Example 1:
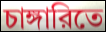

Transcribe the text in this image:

চাঙ্গারিতে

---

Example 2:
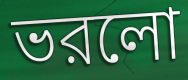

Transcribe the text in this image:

ভরলো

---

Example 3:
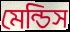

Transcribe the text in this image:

মেন্ডিস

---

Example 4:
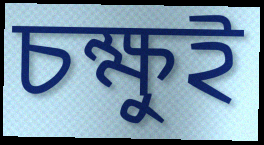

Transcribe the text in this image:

চক্ষুই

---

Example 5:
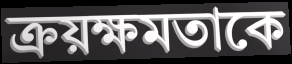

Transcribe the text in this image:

ক্রয়ক্ষমতাকে